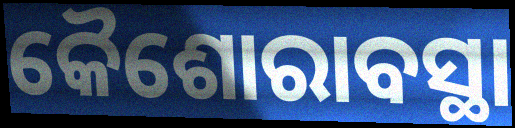
କୈଶୋରାବସ୍ଥା